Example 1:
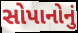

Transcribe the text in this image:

સોપાનોનું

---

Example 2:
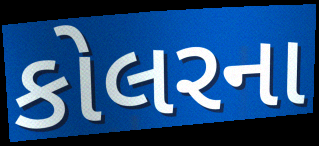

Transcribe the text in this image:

કોલરના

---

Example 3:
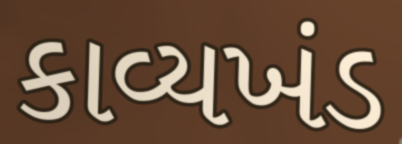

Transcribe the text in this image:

કાવ્યખંડ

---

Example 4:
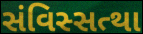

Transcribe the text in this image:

સંવિસ્સત્થા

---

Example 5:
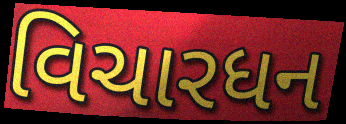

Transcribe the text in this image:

વિચારધન